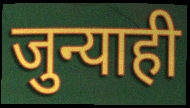
जुन्याही